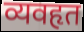
व्यवहृत